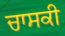
ਚਾਸਕੀ